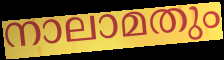
നാലാമതും